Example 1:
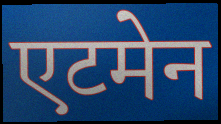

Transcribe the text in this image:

एटमेन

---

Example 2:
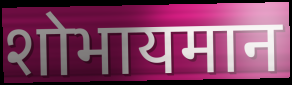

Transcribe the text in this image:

शोभायमान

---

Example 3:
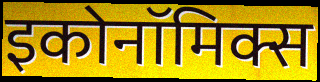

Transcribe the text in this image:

इकोनॉमिक्स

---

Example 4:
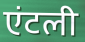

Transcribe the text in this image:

एंटली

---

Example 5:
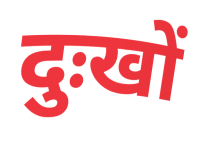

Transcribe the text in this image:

दुःखों